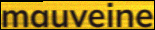
mauveine